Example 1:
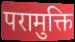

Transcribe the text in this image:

परामुक्ति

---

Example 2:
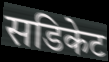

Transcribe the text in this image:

सडिकेट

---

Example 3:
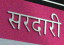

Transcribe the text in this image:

सरदारी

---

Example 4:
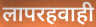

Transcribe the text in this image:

लापरहवाही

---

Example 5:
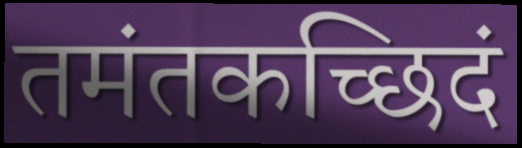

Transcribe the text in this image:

तमंतकच्छिदं